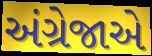
અંગ્રેજાએ